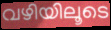
വഴിയിലൂടെ